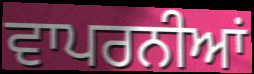
ਵਾਪਰਨੀਆਂ